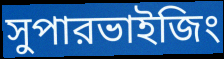
সুপারভাইজিং